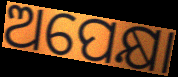
ଅପେକ୍ଷା